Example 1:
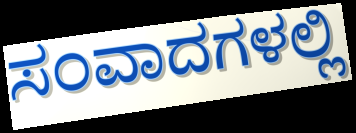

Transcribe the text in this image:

ಸಂವಾದಗಳಲ್ಲಿ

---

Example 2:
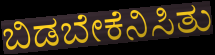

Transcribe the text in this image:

ಬಿಡಬೇಕೆನಿಸಿತು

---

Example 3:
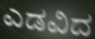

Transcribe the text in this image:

ಎಡವಿದ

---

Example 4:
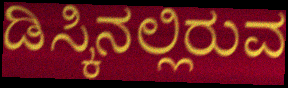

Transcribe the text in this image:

ಡಿಸ್ಕಿನಲ್ಲಿರುವ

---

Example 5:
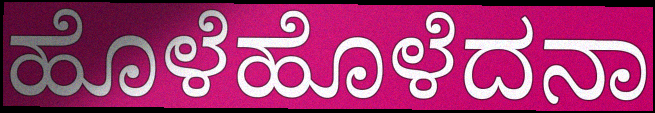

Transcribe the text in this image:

ಹೊಳೆಹೊಳೆದನಾ